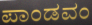
ಪಾಂಡವಂ